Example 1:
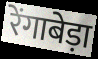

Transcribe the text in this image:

रेंगाबेड़ा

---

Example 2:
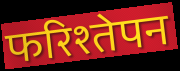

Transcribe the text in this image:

फरिश्तेपन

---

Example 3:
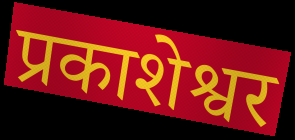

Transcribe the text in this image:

प्रकाशेश्वर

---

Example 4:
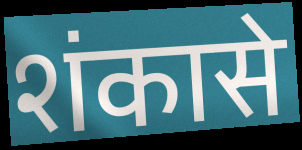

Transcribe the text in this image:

शंकासे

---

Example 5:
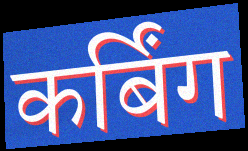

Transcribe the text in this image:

कर्बिंग